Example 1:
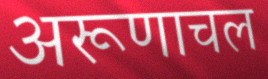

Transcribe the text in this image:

अरूणाचल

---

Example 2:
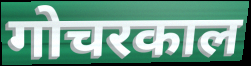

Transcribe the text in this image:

गोचरकाल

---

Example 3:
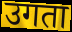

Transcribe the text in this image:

उगता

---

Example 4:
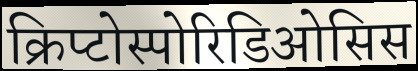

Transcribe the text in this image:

क्रिप्टोस्पोरिडिओसिस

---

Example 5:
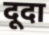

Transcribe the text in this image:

दूदा